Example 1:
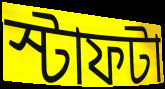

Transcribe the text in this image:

স্টাফটা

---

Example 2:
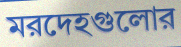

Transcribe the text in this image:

মরদেহগুলোর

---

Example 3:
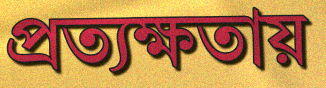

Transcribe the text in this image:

প্রত্যক্ষতায়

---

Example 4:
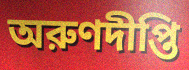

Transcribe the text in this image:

অরুণদীপ্তি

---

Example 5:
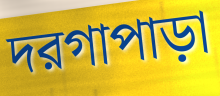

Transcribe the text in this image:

দরগাপাড়া